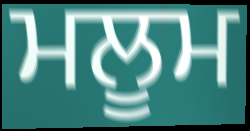
ਮਲੂਮ